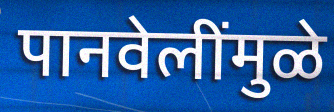
पानवेलींमुळे